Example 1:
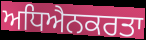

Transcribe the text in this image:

ਅਧਿਐਨਕਰਤਾ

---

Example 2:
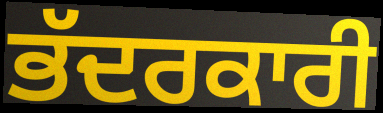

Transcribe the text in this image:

ਭੱਦਰਕਾਰੀ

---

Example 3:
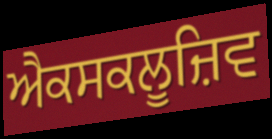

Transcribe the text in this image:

ਐਕਸਕਲੂਜ਼ਿਵ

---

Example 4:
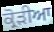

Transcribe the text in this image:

ਕ੍ਰੋੜੀਆ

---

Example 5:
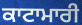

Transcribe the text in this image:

ਕਾਟਾਮਾਰੀ